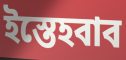
ইস্তেহবাব